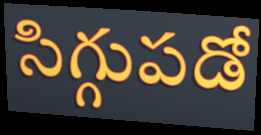
సిగ్గుపడో